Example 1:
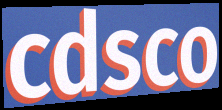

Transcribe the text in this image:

cdsco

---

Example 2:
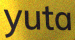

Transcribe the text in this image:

yuta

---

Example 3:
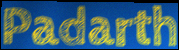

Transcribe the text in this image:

Padarth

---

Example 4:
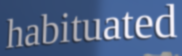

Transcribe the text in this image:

habituated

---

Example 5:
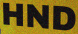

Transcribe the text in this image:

HND